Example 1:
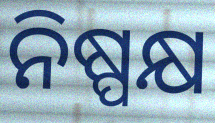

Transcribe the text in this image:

ନିଷ୍ପକ୍ଷ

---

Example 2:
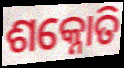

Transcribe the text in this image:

ଶକ୍ନୋତି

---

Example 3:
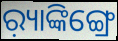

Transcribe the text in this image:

ର଼୍ୟାଙ୍କିଙ୍ଗ୍ରେ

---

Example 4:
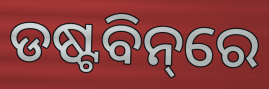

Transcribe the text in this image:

ଡଷ୍ଟବିନ୍‌ରେ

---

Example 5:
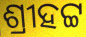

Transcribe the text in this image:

ଶ୍ରୀହଟ୍ଟ